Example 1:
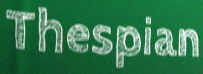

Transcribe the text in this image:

Thespian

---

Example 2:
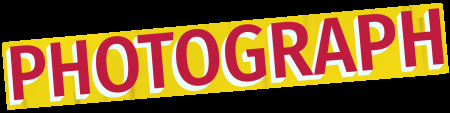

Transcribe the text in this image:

PHOTOGRAPH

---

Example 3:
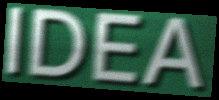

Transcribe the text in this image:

IDEA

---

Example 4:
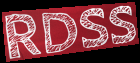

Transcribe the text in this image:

RDSS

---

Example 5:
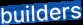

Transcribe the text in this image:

builders